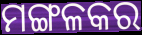
ମଙ୍ଗଳକର